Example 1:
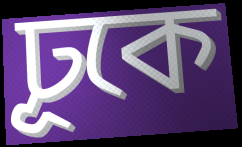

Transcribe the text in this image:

ঢূকে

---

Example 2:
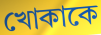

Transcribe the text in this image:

খোকাকে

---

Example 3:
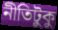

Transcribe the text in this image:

নীতিটুকু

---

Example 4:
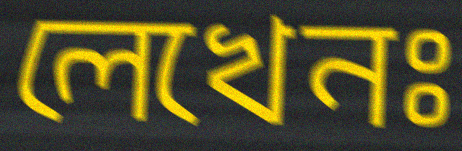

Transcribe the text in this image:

লেখেনঃ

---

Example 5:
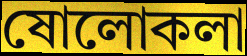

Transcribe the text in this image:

ষোলোকলা